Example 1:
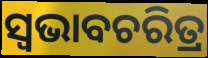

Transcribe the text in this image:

ସ୍ବଭାବଚରିତ୍ର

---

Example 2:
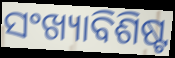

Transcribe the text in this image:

ସଂଖ୍ୟାବିଶିଷ୍ଟ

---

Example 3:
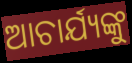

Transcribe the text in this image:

ଆଚାର୍ଯ୍ୟଙ୍କୁ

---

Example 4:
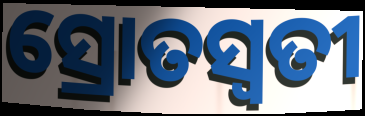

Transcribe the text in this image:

ସ୍ରୋତସ୍ଵତୀ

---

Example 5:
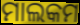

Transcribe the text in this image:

ମାଲକମ